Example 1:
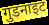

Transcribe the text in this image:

गुडनाइट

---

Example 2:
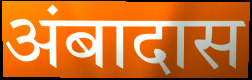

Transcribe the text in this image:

अंबादास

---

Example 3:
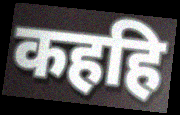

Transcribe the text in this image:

कहहि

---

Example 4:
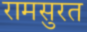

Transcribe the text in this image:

रामसुरत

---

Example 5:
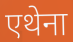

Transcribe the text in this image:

एथेना